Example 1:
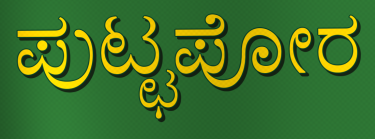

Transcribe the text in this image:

ಪುಟ್ಟಪೋರ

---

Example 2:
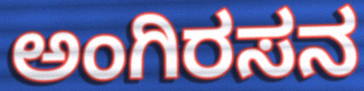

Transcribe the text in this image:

ಅಂಗಿರಸನ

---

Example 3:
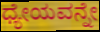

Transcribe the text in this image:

ಧ್ಯೇಯವನ್ನೇ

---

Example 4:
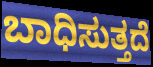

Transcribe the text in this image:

ಬಾಧಿಸುತ್ತದೆ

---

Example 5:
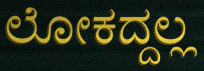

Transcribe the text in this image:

ಲೋಕದ್ದಲ್ಲ